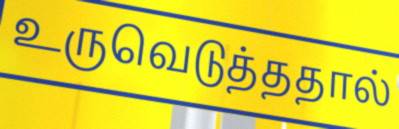
உருவெடுத்ததால்